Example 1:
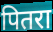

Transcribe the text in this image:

पितरा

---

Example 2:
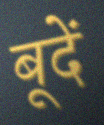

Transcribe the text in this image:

बूदें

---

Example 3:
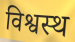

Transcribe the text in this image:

विश्वस्थ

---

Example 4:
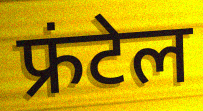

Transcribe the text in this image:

फ्रंटेल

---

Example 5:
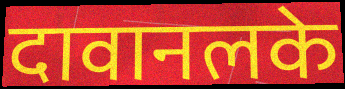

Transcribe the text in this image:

दावानलके